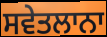
ਸਵੇਤਲਾਨਾ